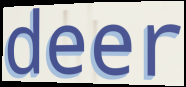
deer